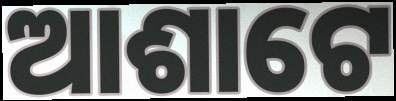
ଆଶାଟେ